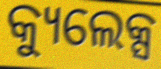
କ୍ୟୁଲେକ୍ସ